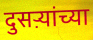
दुसऱ्‍यांच्या